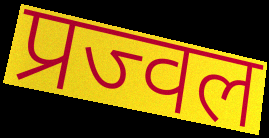
प्रज्वल